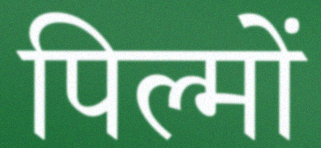
पिल्मों